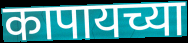
कापायच्या